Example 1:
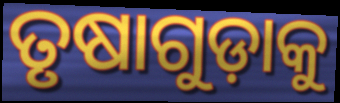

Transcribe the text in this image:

ତୃଷାଗୁଡ଼ାକୁ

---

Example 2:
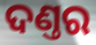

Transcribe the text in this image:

ଦଣ୍ତର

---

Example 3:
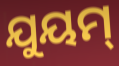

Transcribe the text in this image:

ଯୁୟମ୍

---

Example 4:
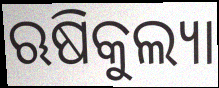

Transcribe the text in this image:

ଋଷିକୁଲ୍ୟା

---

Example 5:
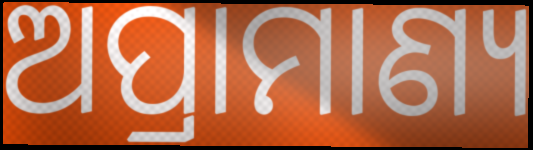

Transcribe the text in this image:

ଅପ୍ରାମାଣ୍ୟ